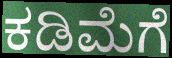
ಕಡಿಮೆಗೆ